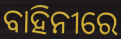
ବାହିନୀରେ